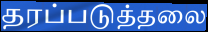
தரப்படுத்தலை